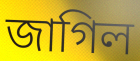
জাগিল